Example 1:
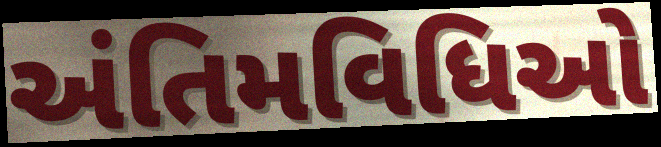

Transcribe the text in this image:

અંતિમવિધિઓ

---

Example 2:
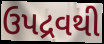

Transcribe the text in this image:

ઉપદ્રવથી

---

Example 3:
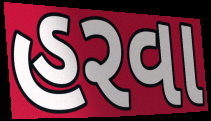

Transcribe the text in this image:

હરવા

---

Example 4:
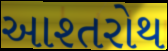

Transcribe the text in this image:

આશ્તરોથ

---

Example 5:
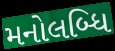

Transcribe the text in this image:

મનોલબ્ધિ